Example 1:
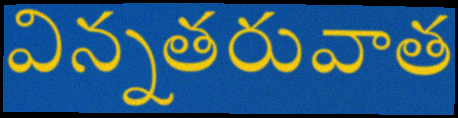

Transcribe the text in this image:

విన్నతరువాత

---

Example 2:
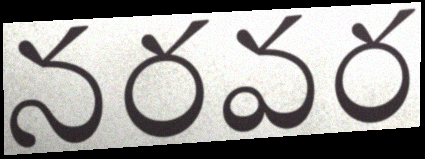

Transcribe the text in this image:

నరవర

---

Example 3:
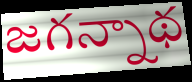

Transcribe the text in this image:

జగన్నాథ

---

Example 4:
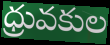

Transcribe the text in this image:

ధ్రువకుల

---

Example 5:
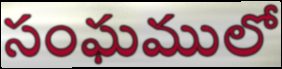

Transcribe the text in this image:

సంఘములో